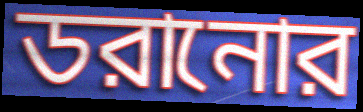
ডরানোর